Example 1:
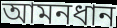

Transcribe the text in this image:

আমনধান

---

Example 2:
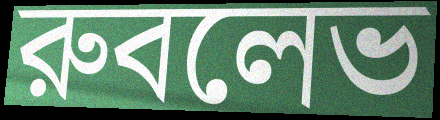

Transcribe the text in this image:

রুবলেভ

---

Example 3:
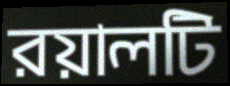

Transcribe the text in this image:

রয়ালটি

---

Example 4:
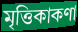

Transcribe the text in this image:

মৃত্তিকাকণা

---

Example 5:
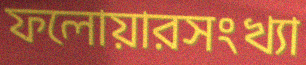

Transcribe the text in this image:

ফলোয়ারসংখ্যা